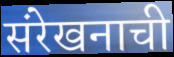
संरेखनाची